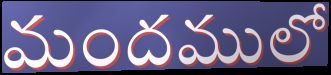
మందములో